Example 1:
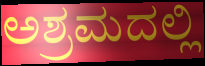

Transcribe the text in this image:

ಅಶ್ರಮದಲ್ಲಿ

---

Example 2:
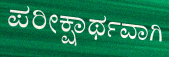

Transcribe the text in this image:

ಪರೀಕ್ಷಾರ್ಥವಾಗಿ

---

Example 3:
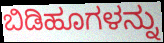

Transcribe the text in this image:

ಬಿಡಿಹೂಗಳನ್ನು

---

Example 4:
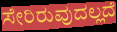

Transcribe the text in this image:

ಸೇರಿರುವುದಲ್ಲದೆ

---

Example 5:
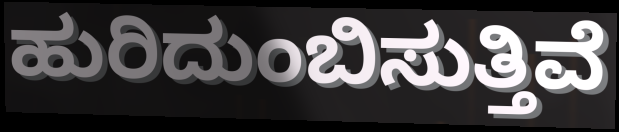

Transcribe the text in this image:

ಹುರಿದುಂಬಿಸುತ್ತಿವೆ